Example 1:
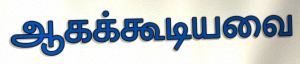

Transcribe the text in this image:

ஆகக்கூடியவை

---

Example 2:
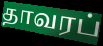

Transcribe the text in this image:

தாவரப்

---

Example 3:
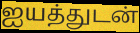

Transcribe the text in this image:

ஐயத்துடன்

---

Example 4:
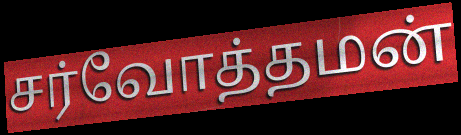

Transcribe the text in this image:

சர்வோத்தமன்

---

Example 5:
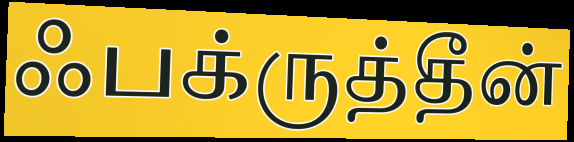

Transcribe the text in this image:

ஃபக்ருத்தீன்